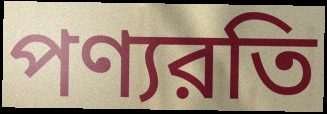
পণ্যরতি